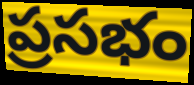
ప్రసభం